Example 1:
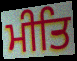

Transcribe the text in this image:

ਮੀਤਿ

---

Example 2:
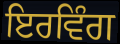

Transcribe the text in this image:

ਇਰਵਿੰਗ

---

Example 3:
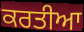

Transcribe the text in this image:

ਕਰਤੀਆ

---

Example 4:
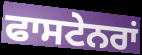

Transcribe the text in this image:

ਫਾਸਟੇਨਰਾਂ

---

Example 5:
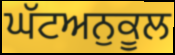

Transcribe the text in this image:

ਘੱਟਅਨੁਕੂਲ